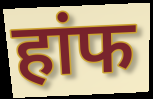
हांफ